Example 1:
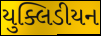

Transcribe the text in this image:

યુક્લિડીયન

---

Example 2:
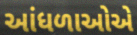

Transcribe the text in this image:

આંધળાઓએ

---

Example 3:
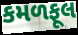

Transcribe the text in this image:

કમળફૂલ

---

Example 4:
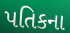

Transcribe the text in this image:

પતિકના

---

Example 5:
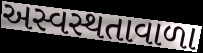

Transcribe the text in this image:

અસ્વસ્થતાવાળા